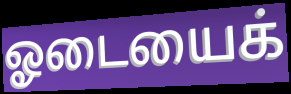
ஓடையைக்